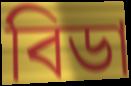
বিডা